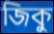
জিকু